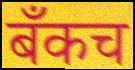
बँकच